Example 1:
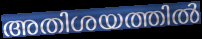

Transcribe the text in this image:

അതിശയത്തിൽ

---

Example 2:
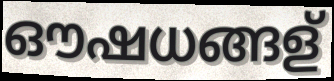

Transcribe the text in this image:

ഔഷധങ്ങള്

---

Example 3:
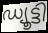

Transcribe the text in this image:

ഡ്യൂട്ടി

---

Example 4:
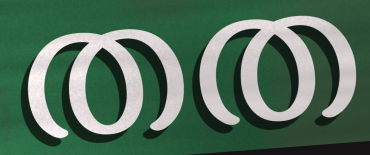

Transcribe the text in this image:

തത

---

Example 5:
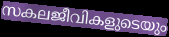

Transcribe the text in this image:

സകലജീവികളുടെയും